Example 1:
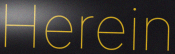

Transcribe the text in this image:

Herein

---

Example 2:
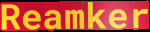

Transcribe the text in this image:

Reamker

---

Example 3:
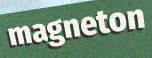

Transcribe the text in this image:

magneton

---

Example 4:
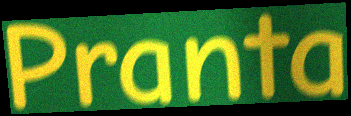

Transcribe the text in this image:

Pranta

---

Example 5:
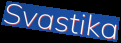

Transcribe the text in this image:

Svastika